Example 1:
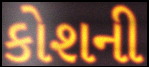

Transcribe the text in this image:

કોશની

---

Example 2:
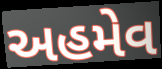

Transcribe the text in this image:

અહમેવ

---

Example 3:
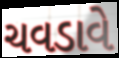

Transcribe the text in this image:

ચવડાવે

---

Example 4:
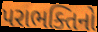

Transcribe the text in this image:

પરાભક્તિનો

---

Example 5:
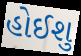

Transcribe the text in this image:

હોઈશુ